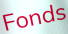
Fonds